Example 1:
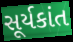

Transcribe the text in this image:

સૂર્યકાંત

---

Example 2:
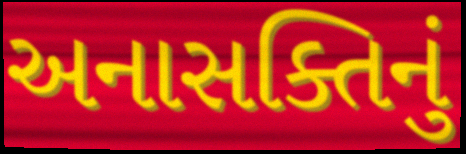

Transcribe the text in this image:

અનાસક્તિનું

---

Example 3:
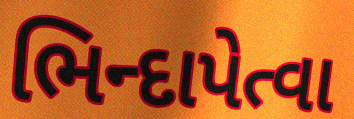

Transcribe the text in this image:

ભિન્દાપેત્વા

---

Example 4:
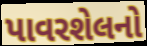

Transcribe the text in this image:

પાવરશેલનો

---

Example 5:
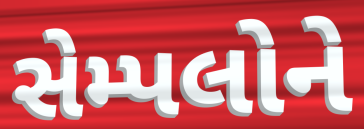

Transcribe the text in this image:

સેમ્પલોને